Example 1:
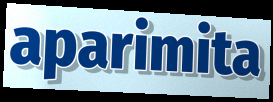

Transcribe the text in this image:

aparimita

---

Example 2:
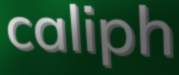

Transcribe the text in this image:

caliph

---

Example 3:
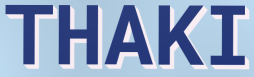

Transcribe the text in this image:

THAKI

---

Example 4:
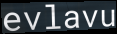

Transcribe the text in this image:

evlavu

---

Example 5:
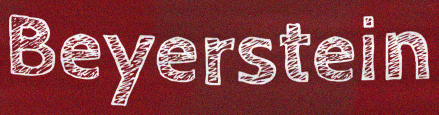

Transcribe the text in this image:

Beyerstein